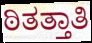
ಠಿತತ್ತಾತಿ